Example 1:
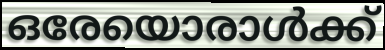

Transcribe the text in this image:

ഒരേയൊരാൾക്ക്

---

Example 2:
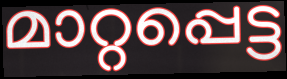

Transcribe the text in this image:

മാറ്റപ്പെട്ട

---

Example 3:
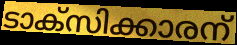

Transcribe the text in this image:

ടാക്സിക്കാരന്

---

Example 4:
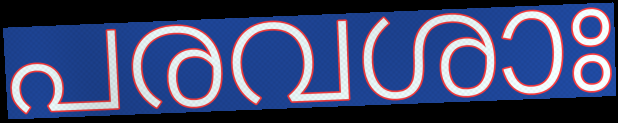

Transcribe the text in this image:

പരവശാഃ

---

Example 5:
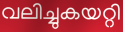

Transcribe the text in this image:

വലിച്ചുകയറ്റി